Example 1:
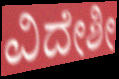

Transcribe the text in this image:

ವಿದೇಶೀ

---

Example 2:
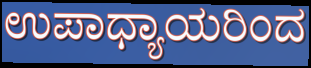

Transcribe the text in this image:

ಉಪಾಧ್ಯಾಯರಿಂದ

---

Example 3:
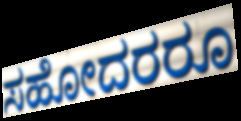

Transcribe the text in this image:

ಸಹೋದರರೂ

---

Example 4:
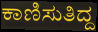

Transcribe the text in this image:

ಕಾಣಿಸುತಿದ್ದ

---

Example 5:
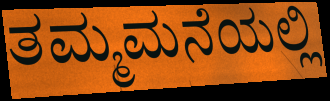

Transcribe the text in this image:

ತಮ್ಮಮನೆಯಲ್ಲಿ